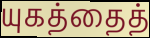
யுகத்தைத்